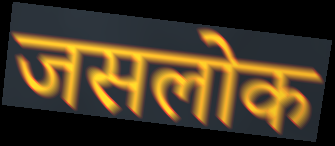
जसलोक